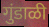
गुंडाळी